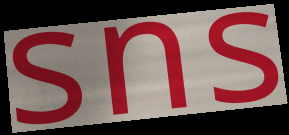
sns